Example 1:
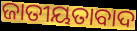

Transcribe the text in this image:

ଜାତୀୟତାବାଦ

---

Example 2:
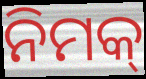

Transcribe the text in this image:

ନିମକ୍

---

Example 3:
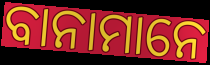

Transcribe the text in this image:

ବାନାମାନେ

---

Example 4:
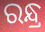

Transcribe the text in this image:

ରନ୍ଧ୍ର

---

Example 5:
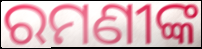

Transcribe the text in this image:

ରମଣୀଙ୍କ